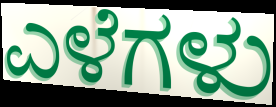
ಎಳೆಗಳು